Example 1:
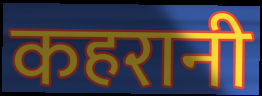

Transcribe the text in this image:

कहरानी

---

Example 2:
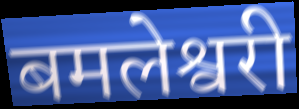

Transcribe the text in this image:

बमलेश्वरी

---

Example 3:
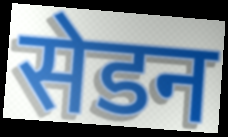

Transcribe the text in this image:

सेडन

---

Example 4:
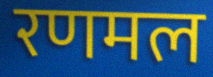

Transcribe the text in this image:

रणमल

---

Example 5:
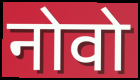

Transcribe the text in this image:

नोवो